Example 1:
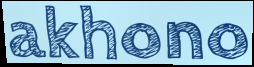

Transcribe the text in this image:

akhono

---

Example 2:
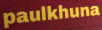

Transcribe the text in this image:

paulkhuna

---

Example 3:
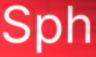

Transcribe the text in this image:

Sph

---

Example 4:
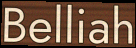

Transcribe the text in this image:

Belliah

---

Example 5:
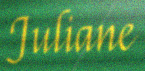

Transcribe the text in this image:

Juliane